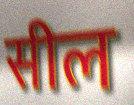
सील